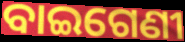
ବାଇଗେଣୀ